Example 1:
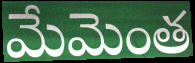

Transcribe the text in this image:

మేమెంత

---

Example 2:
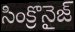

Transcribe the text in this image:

సింక్రొనైజ్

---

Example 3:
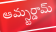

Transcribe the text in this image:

ఆమ్స్టర్డామ్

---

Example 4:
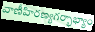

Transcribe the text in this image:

వాణీహిరణ్యగర్భాభ్యాం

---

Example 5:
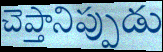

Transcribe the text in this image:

చెప్తానిప్పుడు